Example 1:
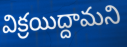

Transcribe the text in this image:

విక్రయిద్దామని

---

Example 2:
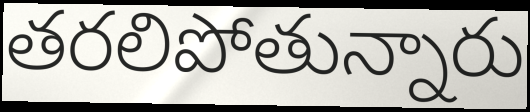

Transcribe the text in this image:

తరలిపోతున్నారు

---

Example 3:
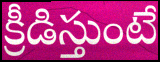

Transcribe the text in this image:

క్రీడిస్తుంటే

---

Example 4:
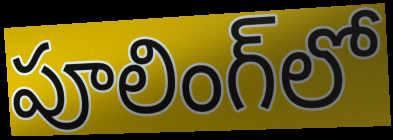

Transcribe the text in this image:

పూలింగ్‌లో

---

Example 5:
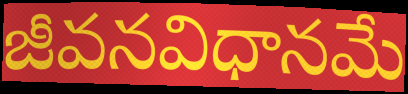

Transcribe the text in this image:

జీవనవిధానమే